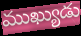
ముఖ్యుడు